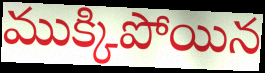
ముక్కిపోయిన